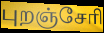
புறஞ்சேரி